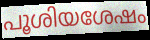
പൂശിയശേഷം